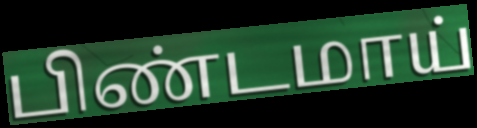
பிண்டமாய்